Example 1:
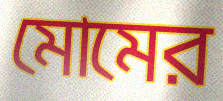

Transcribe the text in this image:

মোমের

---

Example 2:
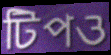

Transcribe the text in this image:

টিপও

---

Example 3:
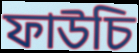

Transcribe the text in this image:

ফাউচি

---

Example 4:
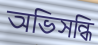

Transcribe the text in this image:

অভিসন্ধি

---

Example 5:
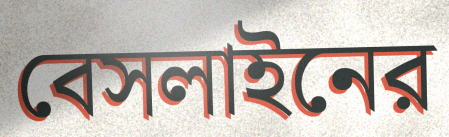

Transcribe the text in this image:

বেসলাইনের